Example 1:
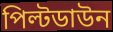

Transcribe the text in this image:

পিল্টডাউন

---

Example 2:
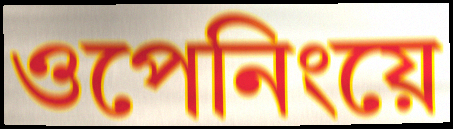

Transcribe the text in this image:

ওপেনিংয়ে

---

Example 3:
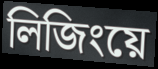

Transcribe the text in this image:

লিজিংয়ে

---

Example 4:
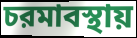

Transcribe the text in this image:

চরমাবস্থায়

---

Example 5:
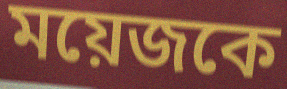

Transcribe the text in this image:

ময়েজকে